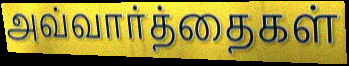
அவ்வார்த்தைகள்